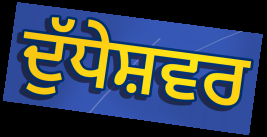
ਦੁੱਧੇਸ਼ਵਰ